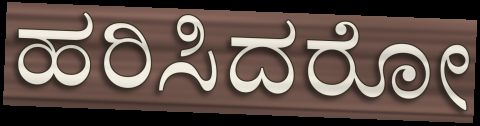
ಹರಿಸಿದರೋ